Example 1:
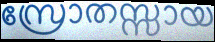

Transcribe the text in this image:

സ്രോതസ്സായ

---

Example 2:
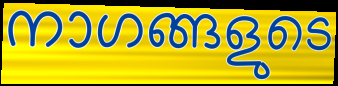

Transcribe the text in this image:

നാഗങ്ങളുടെ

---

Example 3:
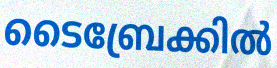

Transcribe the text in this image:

ടൈബ്രേക്കിൽ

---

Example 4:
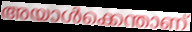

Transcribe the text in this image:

അയാൾക്കെന്താണ്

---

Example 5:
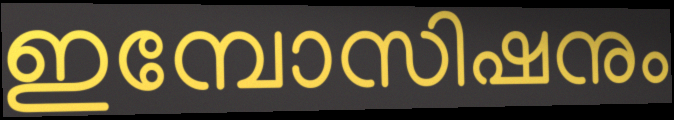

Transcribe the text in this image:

ഇമ്പോസിഷനും